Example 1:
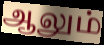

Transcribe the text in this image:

ஆலும்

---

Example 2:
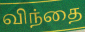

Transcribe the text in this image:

விந்தை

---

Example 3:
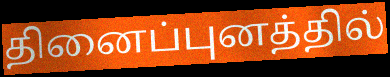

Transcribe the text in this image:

தினைப்புனத்தில்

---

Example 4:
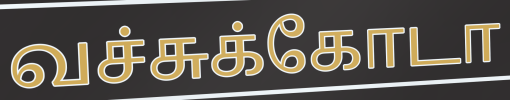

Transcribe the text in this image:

வச்சுக்கோடா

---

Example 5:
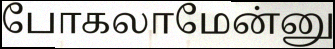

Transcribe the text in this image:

போகலாமேன்னு